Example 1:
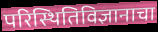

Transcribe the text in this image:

परिस्थितिविज्ञानाचा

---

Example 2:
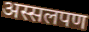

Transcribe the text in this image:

अस्सलपण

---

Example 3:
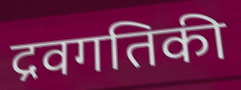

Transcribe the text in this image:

द्रवगतिकी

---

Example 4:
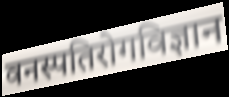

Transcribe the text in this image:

वनस्पतिरोगविज्ञान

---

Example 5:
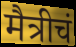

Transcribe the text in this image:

मैत्रीचं